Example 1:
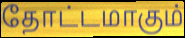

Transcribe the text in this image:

தோட்டமாகும்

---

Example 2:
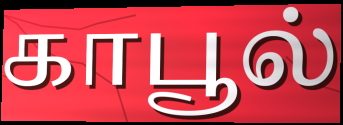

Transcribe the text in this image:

காபூல்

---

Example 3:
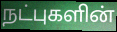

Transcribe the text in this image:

நட்புகளின்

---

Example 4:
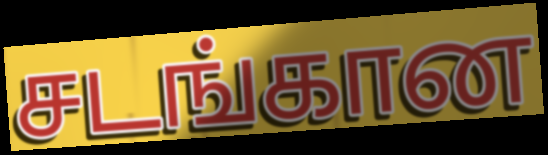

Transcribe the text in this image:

சடங்கான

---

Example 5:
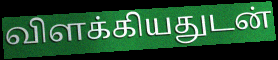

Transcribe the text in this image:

விளக்கியதுடன்